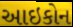
આઇકોન